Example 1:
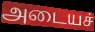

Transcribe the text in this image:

அடையச்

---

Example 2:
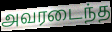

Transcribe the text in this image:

அவரடைந்த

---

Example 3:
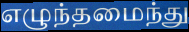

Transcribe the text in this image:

எழுந்தமைந்து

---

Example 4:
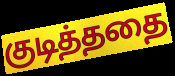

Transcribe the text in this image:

குடித்ததை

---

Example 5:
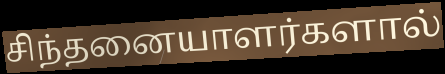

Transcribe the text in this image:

சிந்தனையாளர்களால்